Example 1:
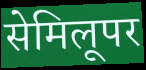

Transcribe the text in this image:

सेमिलूपर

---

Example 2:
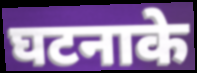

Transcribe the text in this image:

घटनाके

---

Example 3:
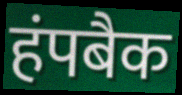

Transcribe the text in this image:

हंपबैक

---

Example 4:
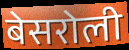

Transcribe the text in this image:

बेसरोली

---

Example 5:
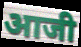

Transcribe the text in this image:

आजी